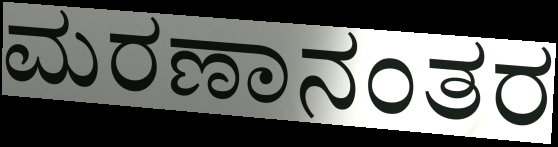
ಮರಣಾನಂತರ